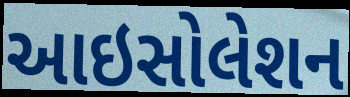
આઇસોલેશન